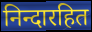
निन्दारहित